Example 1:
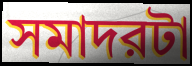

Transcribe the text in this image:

সমাদরটা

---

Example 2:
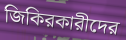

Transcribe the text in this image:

জিকিরকারীদের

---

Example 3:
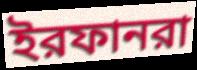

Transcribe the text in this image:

ইরফানরা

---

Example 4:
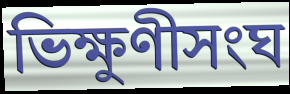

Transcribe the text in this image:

ভিক্ষুণীসংঘ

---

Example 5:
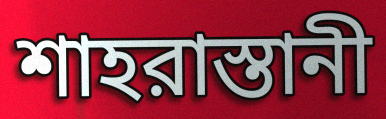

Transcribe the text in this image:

শাহরাস্তানী